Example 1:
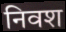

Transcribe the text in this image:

निवश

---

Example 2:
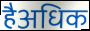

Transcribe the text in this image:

हैअधिक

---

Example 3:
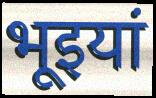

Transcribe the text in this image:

भूइयां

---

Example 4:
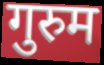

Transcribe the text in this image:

गुरुम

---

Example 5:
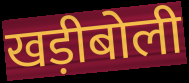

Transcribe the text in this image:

खड़ीबोली